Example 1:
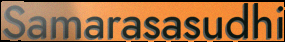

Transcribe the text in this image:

Samarasasudhi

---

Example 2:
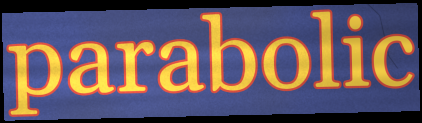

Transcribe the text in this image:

parabolic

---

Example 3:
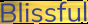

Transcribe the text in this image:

Blissful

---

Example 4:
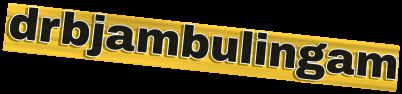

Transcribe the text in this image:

drbjambulingam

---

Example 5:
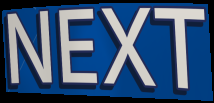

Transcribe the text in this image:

NEXT